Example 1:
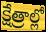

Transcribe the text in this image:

క్షేత్రాల్లో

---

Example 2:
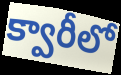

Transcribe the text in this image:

క్వారీలో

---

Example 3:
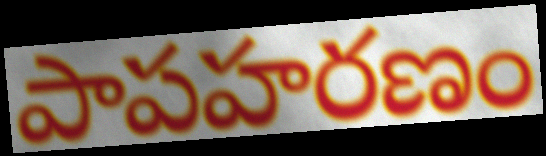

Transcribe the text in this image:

పాపహరణం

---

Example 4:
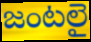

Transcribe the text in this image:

జంటలై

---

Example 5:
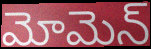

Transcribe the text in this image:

మోమెన్